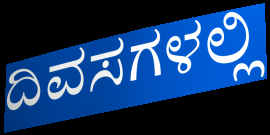
ದಿವಸಗಳಲ್ಲಿ